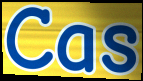
Cas